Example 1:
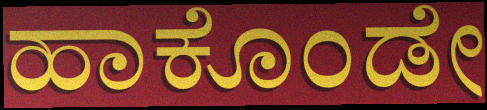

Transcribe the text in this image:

ಹಾಕೊಂಡೇ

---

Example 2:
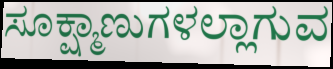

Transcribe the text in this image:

ಸೂಕ್ಷ್ಮಾಣುಗಳಲ್ಲಾಗುವ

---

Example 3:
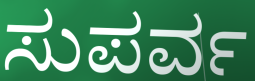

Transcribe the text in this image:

ಸುಪರ್ವ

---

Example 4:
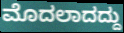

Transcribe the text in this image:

ಮೊದಲಾದದ್ದು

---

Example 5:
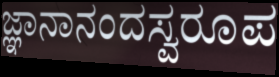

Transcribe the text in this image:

ಜ್ಞಾನಾನಂದಸ್ವರೂಪ